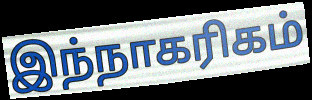
இந்நாகரிகம்